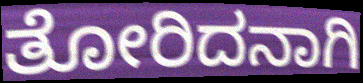
ತೋರಿದನಾಗಿ